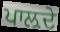
ਪਾਲ਼ਦੇ